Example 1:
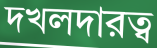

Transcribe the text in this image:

দখলদারত্ব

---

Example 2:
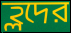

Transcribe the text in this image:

হ্লদের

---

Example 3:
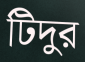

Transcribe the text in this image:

টিদুর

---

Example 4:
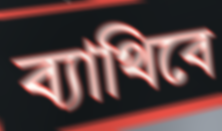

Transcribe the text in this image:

ব্যাথিবে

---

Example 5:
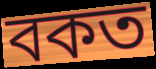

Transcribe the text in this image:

বকত